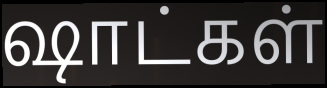
ஷாட்கள்